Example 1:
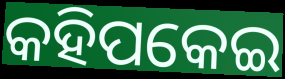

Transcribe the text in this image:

କହିପକେଇ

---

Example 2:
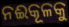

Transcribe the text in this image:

ନଈକୂଳକୁ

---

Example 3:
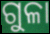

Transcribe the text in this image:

ଗୁଳା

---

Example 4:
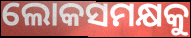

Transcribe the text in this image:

ଲୋକସମକ୍ଷକୁ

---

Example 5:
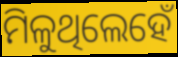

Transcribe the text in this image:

ମିଳୁଥିଲେହେଁ